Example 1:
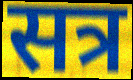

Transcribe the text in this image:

सत्र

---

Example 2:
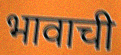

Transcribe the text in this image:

भावाची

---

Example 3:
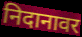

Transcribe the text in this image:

निदानावर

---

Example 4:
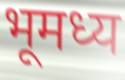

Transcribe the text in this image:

भूमध्य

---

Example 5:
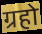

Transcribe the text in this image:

ग्रहो